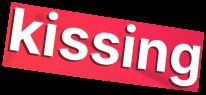
kissing